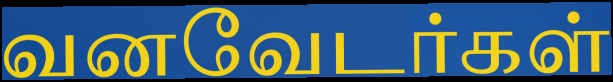
வனவேடர்கள்